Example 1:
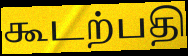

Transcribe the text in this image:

கூடற்பதி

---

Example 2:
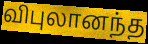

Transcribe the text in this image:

விபுலானந்த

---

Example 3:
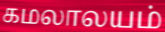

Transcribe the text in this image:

கமலாலயம்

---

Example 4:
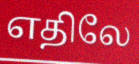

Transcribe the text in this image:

எதிலே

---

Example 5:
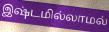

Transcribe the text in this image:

இஷ்டமில்லாமல்